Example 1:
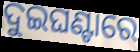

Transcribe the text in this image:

ଦୁଇଘଣ୍ଟାରେ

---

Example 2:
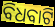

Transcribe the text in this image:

ବିଧବାଟି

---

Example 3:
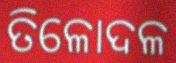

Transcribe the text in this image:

ତିଳୋଦଳ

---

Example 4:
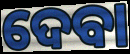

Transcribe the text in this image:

ଦେବା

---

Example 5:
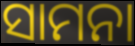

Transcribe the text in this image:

ସାମନା